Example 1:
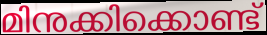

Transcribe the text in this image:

മിനുക്കിക്കൊണ്ട്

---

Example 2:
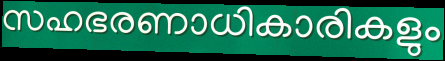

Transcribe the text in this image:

സഹഭരണാധികാരികളും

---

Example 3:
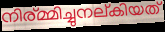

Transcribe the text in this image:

നിര്മ്മിച്ചുനല്കിയത്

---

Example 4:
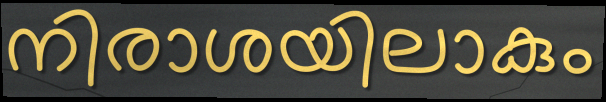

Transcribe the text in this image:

നിരാശയിലാകും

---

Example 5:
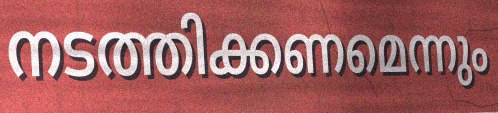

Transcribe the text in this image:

നടത്തിക്കണമെന്നും